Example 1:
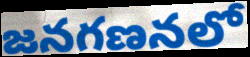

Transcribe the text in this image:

జనగణనలో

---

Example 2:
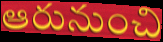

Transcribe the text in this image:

ఆరునుంచి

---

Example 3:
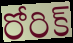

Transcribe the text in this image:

రోరిక్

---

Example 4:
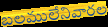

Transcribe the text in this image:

బలములేనివారల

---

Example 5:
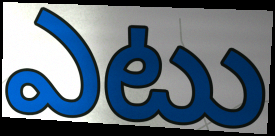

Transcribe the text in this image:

ఎటు